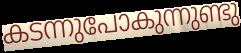
കടന്നുപോകുന്നുണ്ടു